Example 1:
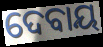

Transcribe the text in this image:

ଦେବାୟ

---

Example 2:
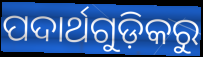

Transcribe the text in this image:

ପଦାର୍ଥଗୁଡ଼ିକରୁ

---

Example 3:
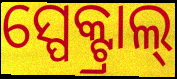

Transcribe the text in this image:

ସ୍ପେକ୍ଟ୍ରାଲ୍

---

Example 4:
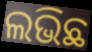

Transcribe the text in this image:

ଲଭିଛ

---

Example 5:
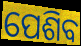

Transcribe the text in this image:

ପେଶିବ